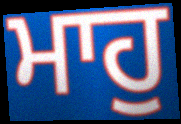
ਮਾਹੁ